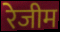
रेजीम